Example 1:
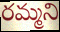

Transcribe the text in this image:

రమ్మని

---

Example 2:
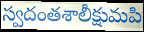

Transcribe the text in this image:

స్వదంతశాలీక్షుమపి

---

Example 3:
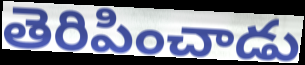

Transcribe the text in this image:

తెరిపించాడు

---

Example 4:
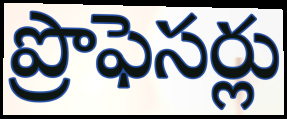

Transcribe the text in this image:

ప్రొఫెసర్లు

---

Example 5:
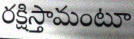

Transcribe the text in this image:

రక్షిస్తామంటూ